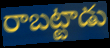
రాబట్టాడు